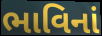
ભાવિનાં